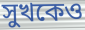
সুখকেও